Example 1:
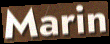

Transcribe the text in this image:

Marin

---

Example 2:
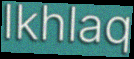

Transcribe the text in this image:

Ikhlaq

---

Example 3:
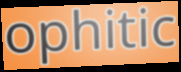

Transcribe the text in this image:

ophitic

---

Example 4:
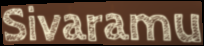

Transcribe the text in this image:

Sivaramu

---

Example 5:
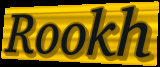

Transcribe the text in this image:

Rookh